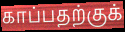
காப்பதற்குக்